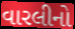
વારલીનો